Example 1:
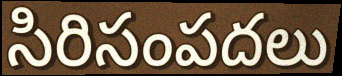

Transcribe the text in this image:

సిరిసంపదలు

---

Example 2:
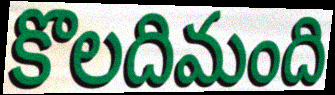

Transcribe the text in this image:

కొలదిమంది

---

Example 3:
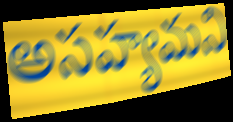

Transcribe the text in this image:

అసహ్యమని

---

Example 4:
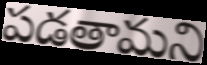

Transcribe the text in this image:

పడతామని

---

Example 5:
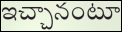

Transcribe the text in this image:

ఇచ్చానంటూ